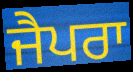
ਜੈਪਰਾ